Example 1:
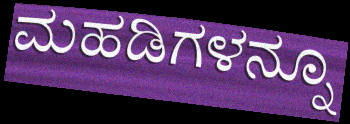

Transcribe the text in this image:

ಮಹಡಿಗಳನ್ನೂ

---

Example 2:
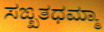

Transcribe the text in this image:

ಸಙ್ಖತಧಮ್ಮಾ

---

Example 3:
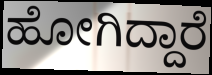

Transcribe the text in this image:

ಹೋಗಿದ್ದಾರೆ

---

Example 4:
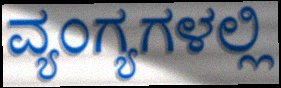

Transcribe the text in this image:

ವ್ಯಂಗ್ಯಗಳಲ್ಲಿ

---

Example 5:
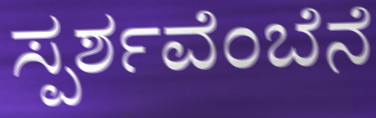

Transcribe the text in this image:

ಸ್ಪರ್ಶವೆಂಬೆನೆ